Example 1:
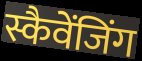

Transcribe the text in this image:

स्कैवेंजिंग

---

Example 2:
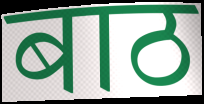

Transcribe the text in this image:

बाठ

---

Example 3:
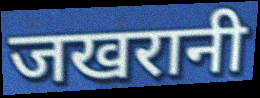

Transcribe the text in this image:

जखरानी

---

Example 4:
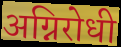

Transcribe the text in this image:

अग्निरोधी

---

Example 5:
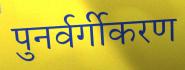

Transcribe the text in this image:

पुनर्वर्गीकरण